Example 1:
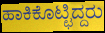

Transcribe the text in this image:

ಹಾಕಿಕೊಟ್ಟಿದ್ದರು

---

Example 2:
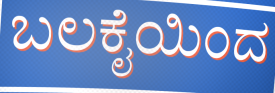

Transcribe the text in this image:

ಬಲಕೈಯಿಂದ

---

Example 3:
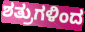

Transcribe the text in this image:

ಶತ್ರುಗಳಿಂದ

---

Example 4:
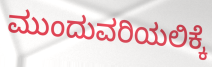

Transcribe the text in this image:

ಮುಂದುವರಿಯಲಿಕ್ಕೆ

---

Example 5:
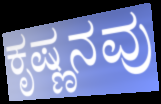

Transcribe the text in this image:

ಕೃಷ್ಣನವು